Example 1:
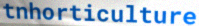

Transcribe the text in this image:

tnhorticulture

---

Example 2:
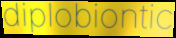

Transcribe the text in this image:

diplobiontic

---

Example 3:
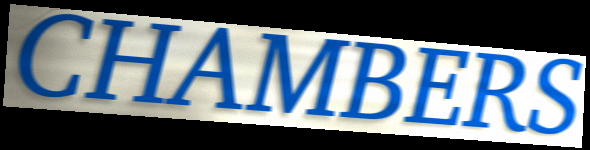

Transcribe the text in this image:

CHAMBERS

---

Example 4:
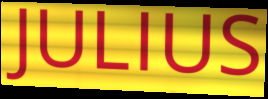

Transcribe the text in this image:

JULIUS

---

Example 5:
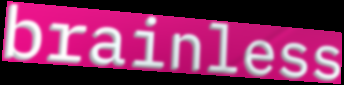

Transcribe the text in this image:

brainless